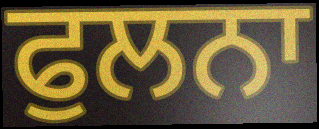
ਫੁਲਨਾ